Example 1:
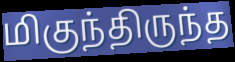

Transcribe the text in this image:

மிகுந்திருந்த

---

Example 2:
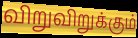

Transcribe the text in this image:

விறுவிறுக்கும்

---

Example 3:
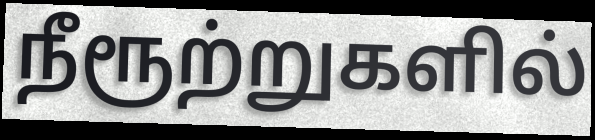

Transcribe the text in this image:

நீரூற்றுகளில்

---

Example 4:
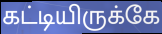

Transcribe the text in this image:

கட்டியிருக்கே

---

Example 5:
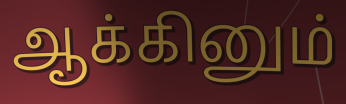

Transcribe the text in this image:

ஆக்கினும்